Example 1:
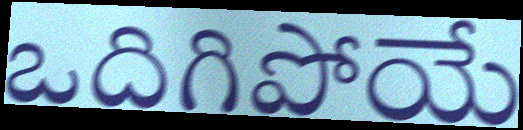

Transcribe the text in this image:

ఒదిగిపోయే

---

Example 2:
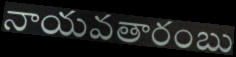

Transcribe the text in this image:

నాయవతారంబు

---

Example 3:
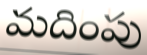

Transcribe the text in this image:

మదింపు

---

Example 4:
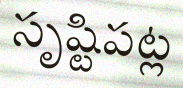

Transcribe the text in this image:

సృష్టిపట్ల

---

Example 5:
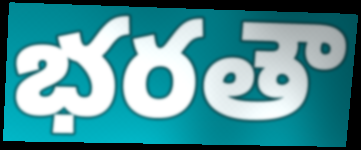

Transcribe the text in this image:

భరతౌ